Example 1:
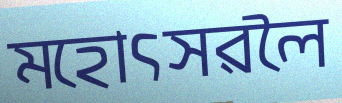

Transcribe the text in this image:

মহোৎসৱলৈ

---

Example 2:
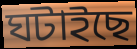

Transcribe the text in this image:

ঘটাইছে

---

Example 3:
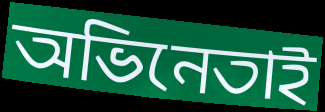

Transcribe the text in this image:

অভিনেতাই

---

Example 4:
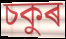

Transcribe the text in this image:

চকুৰ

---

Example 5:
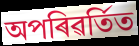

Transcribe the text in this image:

অপৰিৱৰ্তিত